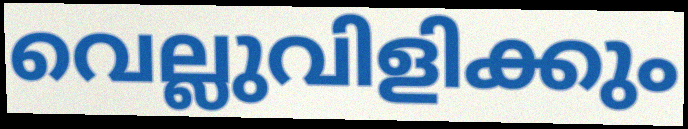
വെല്ലുവിളിക്കും